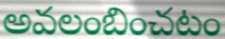
అవలంబించటం